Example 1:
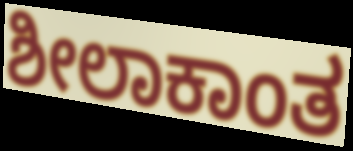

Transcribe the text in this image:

ಶೀಲಾಕಾಂತ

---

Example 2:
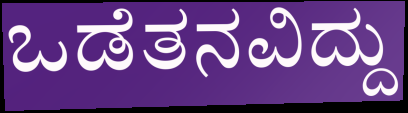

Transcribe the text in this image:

ಒಡೆತನವಿದ್ದು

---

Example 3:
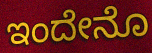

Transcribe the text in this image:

ಇಂದೇನೊ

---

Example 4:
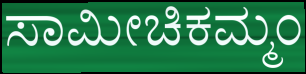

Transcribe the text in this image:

ಸಾಮೀಚಿಕಮ್ಮಂ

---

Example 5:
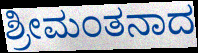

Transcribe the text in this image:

ಶ್ರೀಮಂತನಾದ